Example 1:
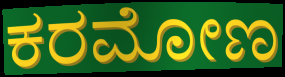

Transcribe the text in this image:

ಕರಮೋಣ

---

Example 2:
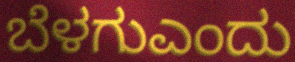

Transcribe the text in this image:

ಬೆಳಗುಎಂದು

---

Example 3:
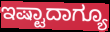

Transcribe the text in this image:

ಇಷ್ಟಾದಾಗ್ಯೂ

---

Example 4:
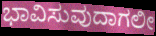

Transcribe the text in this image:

ಭಾವಿಸುವುದಾಗಲೀ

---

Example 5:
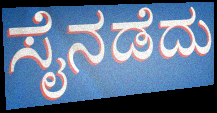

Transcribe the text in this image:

ಸೈನಡೆದು